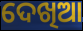
ଦେଖିଆ